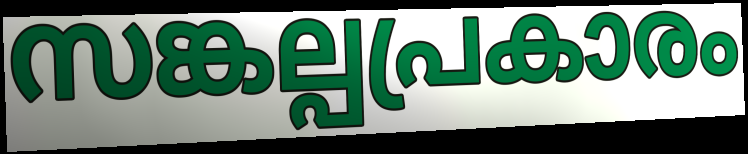
സങ്കല്പപ്രകാരം